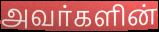
அவர்களின்